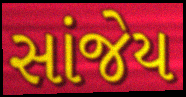
સાંજેય